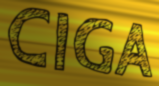
CIGA